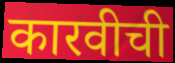
कारवीची